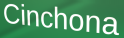
Cinchona